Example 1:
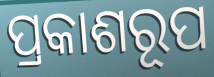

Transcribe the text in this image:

ପ୍ରକାଶରୂପ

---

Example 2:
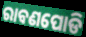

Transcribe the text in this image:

ରାବଣପୋଡି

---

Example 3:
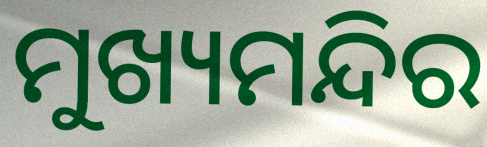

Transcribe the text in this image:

ମୁଖ୍ୟମନ୍ଦିର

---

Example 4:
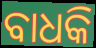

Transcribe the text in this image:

ବାଧକି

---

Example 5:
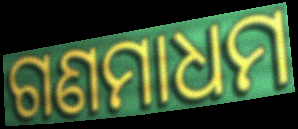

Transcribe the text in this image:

ଗଣମାଧମ